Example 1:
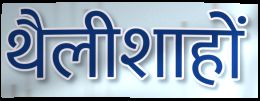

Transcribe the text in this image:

थैलीशाहों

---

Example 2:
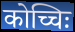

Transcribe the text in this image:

कोच्चिः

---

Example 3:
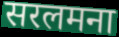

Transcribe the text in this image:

सरलमना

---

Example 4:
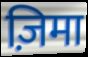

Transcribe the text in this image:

ज़िमा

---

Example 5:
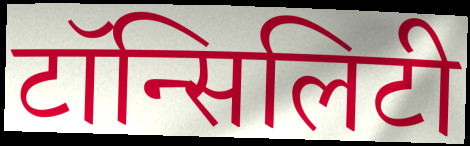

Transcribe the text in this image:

टॉन्सिलिटी